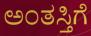
ಅಂತಸ್ತಿಗೆ